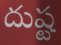
దుష్ట